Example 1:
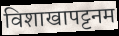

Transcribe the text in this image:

विशाखापट्टनम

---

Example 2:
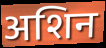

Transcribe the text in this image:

अशिन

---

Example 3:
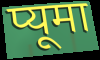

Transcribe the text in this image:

प्यूमा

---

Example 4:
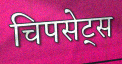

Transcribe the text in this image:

चिपसेट्स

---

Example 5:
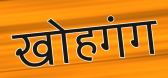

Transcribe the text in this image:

खोहगंग